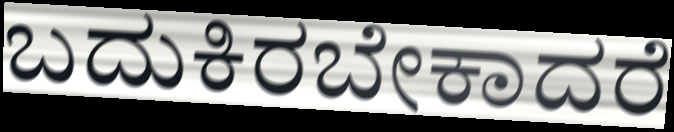
ಬದುಕಿರಬೇಕಾದರೆ